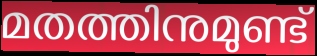
മതത്തിനുമുണ്ട്